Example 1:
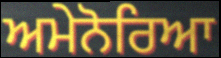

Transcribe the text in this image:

ਅਮੇਨੋਰਿਆ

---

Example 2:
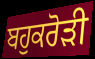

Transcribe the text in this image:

ਬਹੁਕਰੋਡ਼ੀ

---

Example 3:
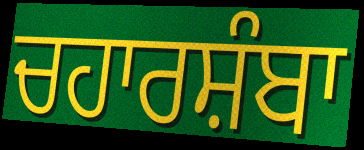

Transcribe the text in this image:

ਚਹਾਰਸ਼ੰਬਾ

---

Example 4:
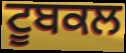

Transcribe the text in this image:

ਟੂਬਕਲ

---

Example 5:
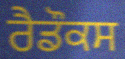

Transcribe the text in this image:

ਰੈਡੌਕਸ